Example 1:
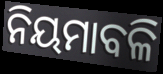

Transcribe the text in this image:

ନିୟମାବଳି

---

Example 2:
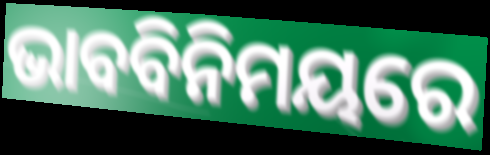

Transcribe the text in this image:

ଭାବବିନିମୟରେ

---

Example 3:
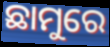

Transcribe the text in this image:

ଛାମୁରେ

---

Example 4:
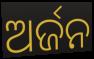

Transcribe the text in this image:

ଅର୍ଜନ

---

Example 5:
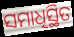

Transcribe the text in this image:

ସମାଧିସ୍ଥିତ